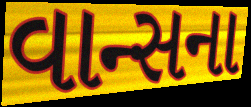
વાન્સના